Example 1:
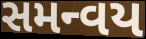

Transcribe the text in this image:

સમન્વય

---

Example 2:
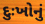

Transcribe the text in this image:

દુઃખોનું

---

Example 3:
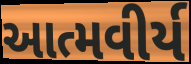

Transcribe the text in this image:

આત્મવીર્ય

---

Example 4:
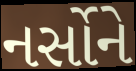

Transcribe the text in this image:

નર્સોને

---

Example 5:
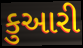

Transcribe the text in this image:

કુઆરી